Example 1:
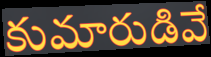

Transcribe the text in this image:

కుమారుడివే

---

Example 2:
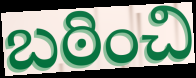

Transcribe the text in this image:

బఠించి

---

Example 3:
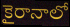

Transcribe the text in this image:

కైరానాలో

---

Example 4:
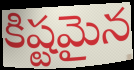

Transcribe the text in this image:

కిష్టమైన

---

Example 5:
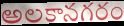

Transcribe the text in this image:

అలకానగరం